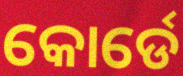
କୋର୍ଡେ